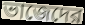
ভাজেদের